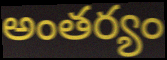
అంతర్యం